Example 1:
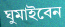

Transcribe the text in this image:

ঘুমাইবেন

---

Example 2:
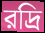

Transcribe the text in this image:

রদ্রি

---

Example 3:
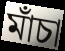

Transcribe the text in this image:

মাঁচা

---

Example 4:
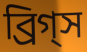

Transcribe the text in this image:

ব্রিগ্‌স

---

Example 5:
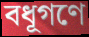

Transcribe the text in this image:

বধূগণে